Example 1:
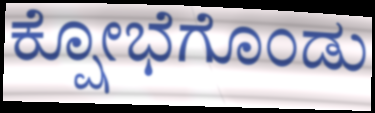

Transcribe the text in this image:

ಕ್ಷೋಭೆಗೊಂಡು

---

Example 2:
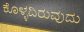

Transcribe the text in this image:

ಕೊಳ್ಳದಿರುವುದು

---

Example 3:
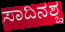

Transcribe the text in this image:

ಸಾದಿನಶ್ಚ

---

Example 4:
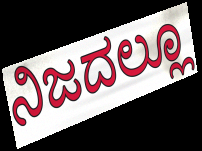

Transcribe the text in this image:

ನಿಜದಲ್ಲೂ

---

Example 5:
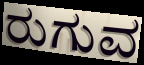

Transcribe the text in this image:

ರುಗುವ